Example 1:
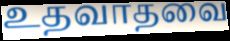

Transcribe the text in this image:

உதவாதவை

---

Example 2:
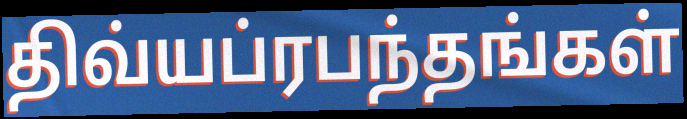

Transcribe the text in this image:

திவ்யப்ரபந்தங்கள்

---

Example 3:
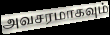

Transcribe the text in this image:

அவசரமாகவும்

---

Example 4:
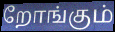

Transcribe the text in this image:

றோங்கும்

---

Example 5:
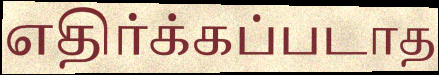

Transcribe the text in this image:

எதிர்க்கப்படாத